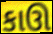
કાઊ